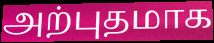
அற்புதமாக